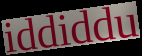
iddiddu